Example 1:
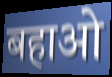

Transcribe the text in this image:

बहाओ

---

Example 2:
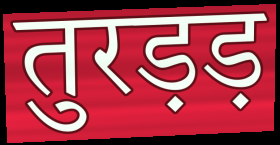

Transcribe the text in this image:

तुरड़ड़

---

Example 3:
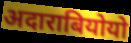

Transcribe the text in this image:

अदाराबियोयो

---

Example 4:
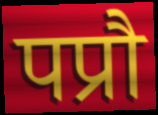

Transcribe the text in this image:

पप्रौ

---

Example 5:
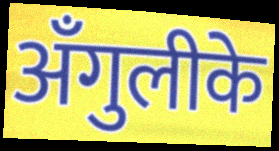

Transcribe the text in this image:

अँगुलीके